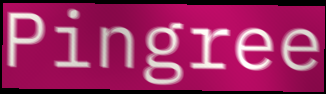
Pingree